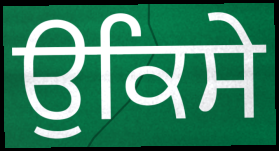
ਉਕਿਸੇ